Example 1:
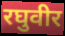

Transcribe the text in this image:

रघुवीर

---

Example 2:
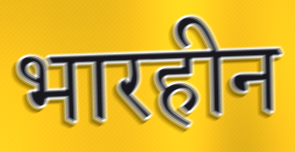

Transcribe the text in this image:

भारहीन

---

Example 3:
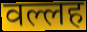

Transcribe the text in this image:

वल्लह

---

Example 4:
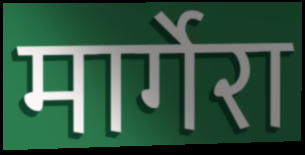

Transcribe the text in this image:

मार्गेरा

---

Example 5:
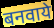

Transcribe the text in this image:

बनवाये